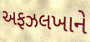
અફઝલખાને